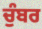
ਚੁੰਬਰ